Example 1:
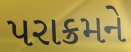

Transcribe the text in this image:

પરાક્રમને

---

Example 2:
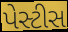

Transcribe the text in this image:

પેસ્ટીસ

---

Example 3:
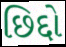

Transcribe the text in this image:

છિદ્દો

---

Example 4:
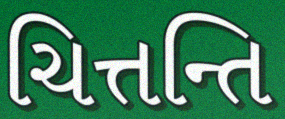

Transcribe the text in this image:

ચિત્તન્તિ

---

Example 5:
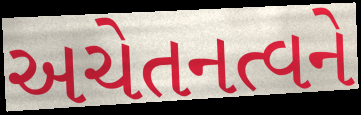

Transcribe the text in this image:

અચેતનત્વને